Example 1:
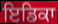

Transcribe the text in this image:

ਇਡਿਕਾ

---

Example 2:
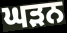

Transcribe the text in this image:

ਘੜਨ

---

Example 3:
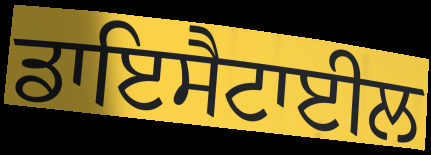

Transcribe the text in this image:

ਡਾਇਸੈਟਾਈਲ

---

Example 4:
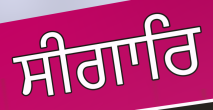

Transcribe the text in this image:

ਸੀਗਾਰਿ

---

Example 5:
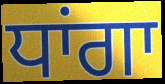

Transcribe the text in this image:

ਧਾਂਗਾ